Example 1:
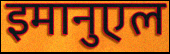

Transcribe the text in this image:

इमानुएल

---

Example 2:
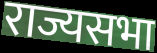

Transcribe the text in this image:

राज्यसभा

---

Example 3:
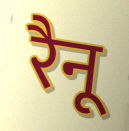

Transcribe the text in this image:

रैनू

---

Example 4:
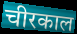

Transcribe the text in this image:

चीरकाल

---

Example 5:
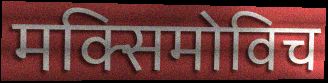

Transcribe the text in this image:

मक्सिमोविच